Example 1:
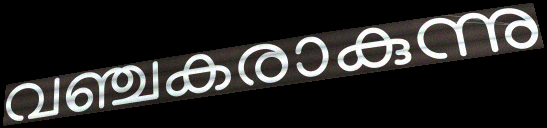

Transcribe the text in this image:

വഞ്ചകരാകുന്നു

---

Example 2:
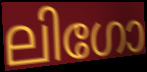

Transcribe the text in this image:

ലിഗോ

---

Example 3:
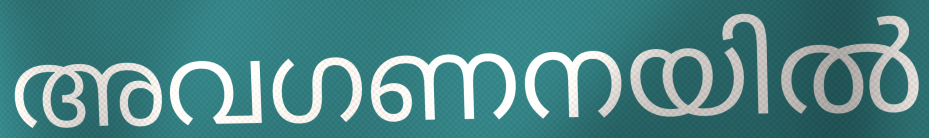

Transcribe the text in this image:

അവഗണനയിൽ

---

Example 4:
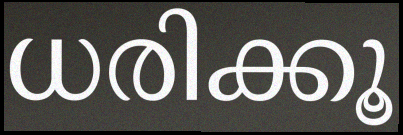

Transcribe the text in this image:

ധരിക്കൂ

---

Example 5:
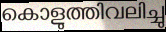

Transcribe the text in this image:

കൊളുത്തിവലിച്ചു